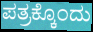
ಪತ್ರಕ್ಕೊಂದು